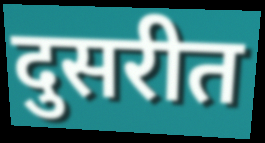
दुसरीत